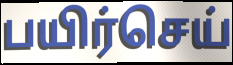
பயிர்செய்